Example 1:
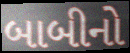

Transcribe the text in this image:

બાબીનો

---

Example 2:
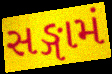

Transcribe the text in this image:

સઙ્ગામં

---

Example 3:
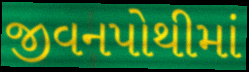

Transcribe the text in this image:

જીવનપોથીમાં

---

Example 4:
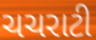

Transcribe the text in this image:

ચચરાટી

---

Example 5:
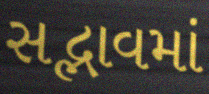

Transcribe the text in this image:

સદ્ભાવમાં